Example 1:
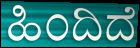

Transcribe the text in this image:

ಹಿಂದಿದೆ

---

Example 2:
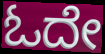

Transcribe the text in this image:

ಓದೇ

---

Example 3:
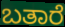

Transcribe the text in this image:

ಬತಾರೆ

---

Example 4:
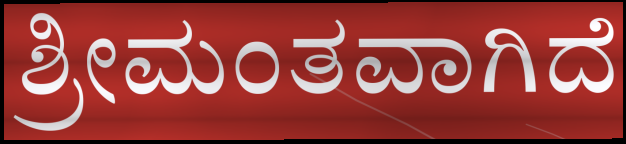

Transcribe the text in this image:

ಶ್ರೀಮಂತವಾಗಿದೆ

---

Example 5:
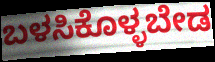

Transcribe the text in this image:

ಬಳಸಿಕೊಳ್ಳಬೇಡ